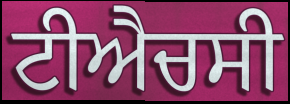
ਟੀਐਚਸੀ